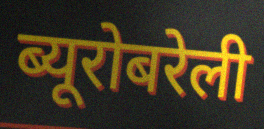
ब्यूरोबरेली